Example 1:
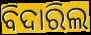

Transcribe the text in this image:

ବିଦାରିଲ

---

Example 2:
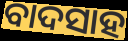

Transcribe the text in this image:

ବାଦସାହ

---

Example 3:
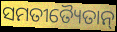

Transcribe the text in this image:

ସମତୀତ୍ୟୈତାନ୍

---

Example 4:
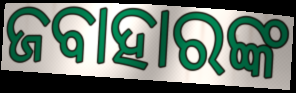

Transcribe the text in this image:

ଜବାହାରଙ୍କ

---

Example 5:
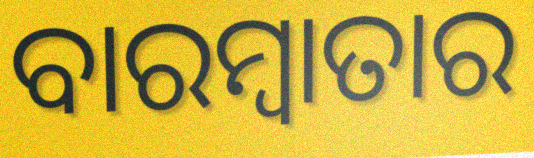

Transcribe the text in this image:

ବାରମ୍ବାତାର